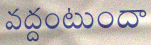
వద్దంటుందా